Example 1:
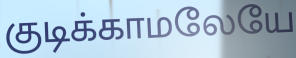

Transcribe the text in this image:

குடிக்காமலேயே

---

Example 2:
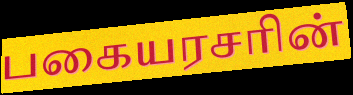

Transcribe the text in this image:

பகையரசரின்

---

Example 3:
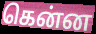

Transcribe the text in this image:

கென்ன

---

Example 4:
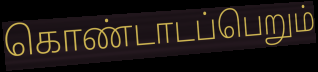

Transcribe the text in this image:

கொண்டாடப்பெறும்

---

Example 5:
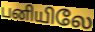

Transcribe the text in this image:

பனியிலே